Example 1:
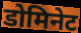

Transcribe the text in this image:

डोमिनेट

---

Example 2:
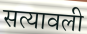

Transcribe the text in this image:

सत्यावली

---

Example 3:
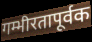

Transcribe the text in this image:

गम्भीरतापूर्वक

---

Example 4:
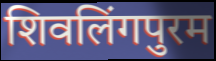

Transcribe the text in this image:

शिवलिंगपुरम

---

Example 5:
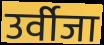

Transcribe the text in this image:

उर्वीजा